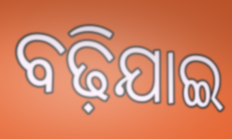
ବଢ଼ିଯାଇ